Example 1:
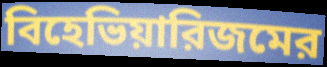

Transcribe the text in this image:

বিহেভিয়ারিজমের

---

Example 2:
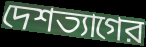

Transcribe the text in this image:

দেশত্যাগের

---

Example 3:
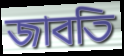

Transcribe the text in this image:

জাবতি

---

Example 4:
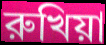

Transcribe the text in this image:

রুখিয়া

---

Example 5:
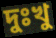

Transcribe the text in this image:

দুঃখু